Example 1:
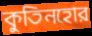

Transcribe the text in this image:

কুতিনহোর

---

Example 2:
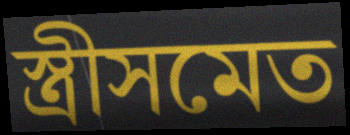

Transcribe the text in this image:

স্ত্রীসমেত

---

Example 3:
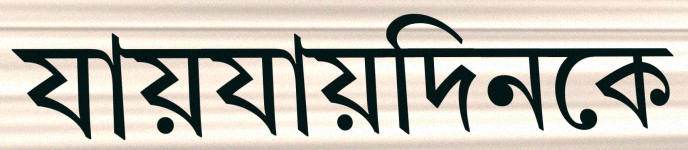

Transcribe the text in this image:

যায়যায়দিনকে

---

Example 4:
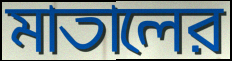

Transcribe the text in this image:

মাতালের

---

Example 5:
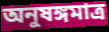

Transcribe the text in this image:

অনুষঙ্গমাত্র